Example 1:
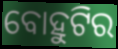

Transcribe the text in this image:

ବୋହୁଟିର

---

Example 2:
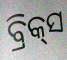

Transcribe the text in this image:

ବ୍ରିକ୍‌ସ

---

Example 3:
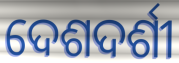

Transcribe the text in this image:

ଦେଶଦର୍ଶୀ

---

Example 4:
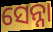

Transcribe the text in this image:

ସେନ୍ନା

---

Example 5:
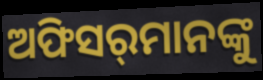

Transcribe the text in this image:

ଅଫିସର୍‌ମାନଙ୍କୁ